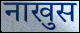
नाखुस